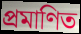
প্রমাণিত